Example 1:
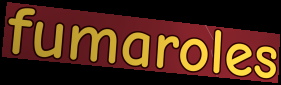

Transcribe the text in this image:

fumaroles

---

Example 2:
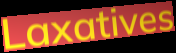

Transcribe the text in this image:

Laxatives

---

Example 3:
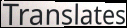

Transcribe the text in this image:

Translates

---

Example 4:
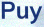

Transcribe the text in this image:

Puy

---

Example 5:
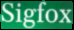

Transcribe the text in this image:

Sigfox